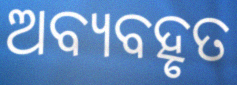
ଅବ୍ୟବହୃତ